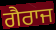
ਗੈਰਾਜ